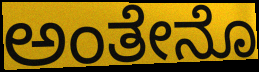
ಅಂತೇನೊ